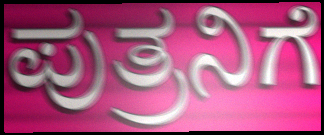
ಪುತ್ರನಿಗೆ